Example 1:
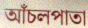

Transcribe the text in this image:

আঁচলপাতা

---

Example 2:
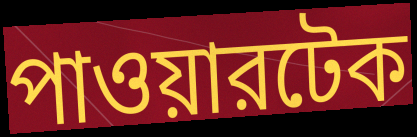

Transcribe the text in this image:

পাওয়ারটেক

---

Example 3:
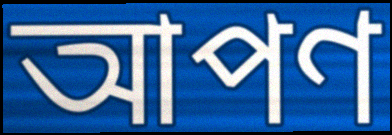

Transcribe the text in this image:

আপণ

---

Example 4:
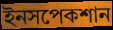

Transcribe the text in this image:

ইনসপেকশান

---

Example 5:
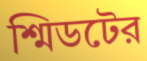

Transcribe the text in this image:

শ্মিডটের